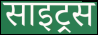
साइट्रस